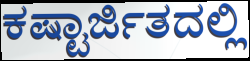
ಕಷ್ಟಾರ್ಜಿತದಲ್ಲಿ